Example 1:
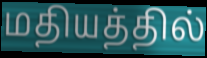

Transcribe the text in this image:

மதியத்தில்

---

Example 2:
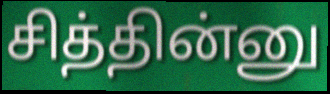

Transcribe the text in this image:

சித்தின்னு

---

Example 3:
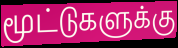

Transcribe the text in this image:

மூட்டுகளுக்கு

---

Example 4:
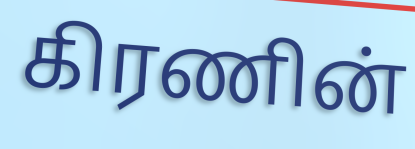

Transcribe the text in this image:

கிரணின்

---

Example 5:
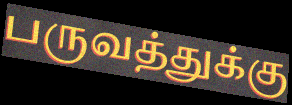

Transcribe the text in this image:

பருவத்துக்கு